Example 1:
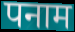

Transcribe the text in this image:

पनाम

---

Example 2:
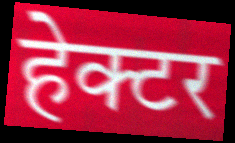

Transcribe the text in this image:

हेक्टर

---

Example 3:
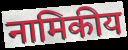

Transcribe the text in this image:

नामिकीय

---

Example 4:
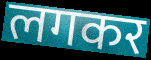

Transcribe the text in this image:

लगकर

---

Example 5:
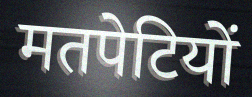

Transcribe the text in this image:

मतपेटियों